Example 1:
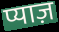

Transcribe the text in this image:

प्याज़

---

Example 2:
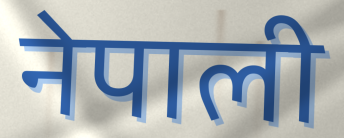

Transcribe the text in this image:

नेपाली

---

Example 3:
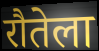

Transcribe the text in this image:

रौतेला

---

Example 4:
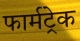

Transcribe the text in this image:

फार्मट्रेक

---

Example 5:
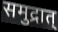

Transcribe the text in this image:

समुद्रात्